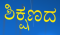
ಶಿಕ್ಷಣದ